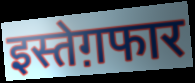
इस्तेग़फार